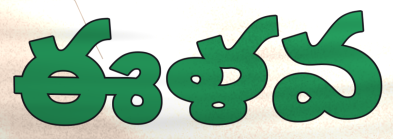
ఈళవ